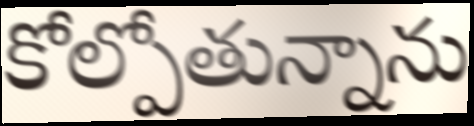
కోల్పోతున్నాను